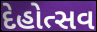
દેહોત્સવ